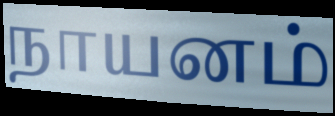
நாயனம்